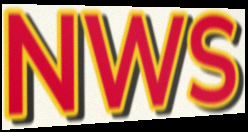
NWS